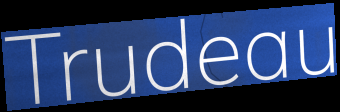
Trudeau